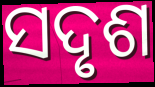
ସଦୃଶ